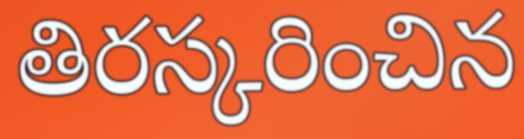
తిరస్కరించిన